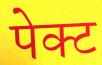
पेक्ट